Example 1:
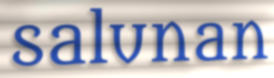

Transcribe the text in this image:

salunan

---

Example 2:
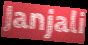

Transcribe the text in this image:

Janjali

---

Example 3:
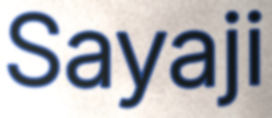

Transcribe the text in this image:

Sayaji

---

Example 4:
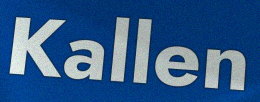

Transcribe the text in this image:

Kallen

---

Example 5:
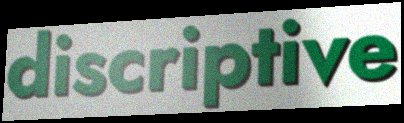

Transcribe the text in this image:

discriptive